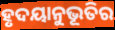
ହୃଦୟାନୁଭୂତିର